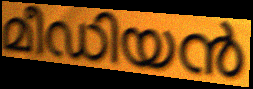
മീഡിയൻ